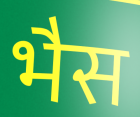
भैस